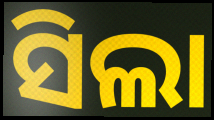
ସିଲା